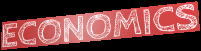
ECONOMICS